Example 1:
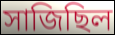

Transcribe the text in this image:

সাজিছিল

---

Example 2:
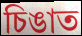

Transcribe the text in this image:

চিঙাত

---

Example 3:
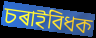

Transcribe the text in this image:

চৰাইবিধক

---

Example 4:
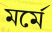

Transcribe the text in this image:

মৰ্মে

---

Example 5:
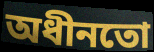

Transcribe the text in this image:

অধীনতো